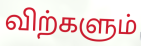
விற்களும்